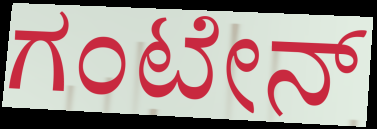
ಗಂಟೇನ್